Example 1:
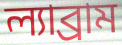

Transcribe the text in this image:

ল্যাব্রাম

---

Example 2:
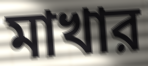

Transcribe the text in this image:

মাখার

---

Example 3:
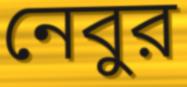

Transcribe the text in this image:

নেবুর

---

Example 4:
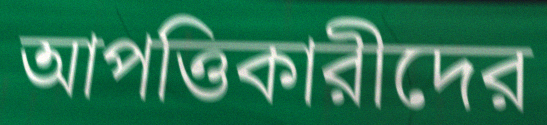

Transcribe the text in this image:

আপত্তিকারীদের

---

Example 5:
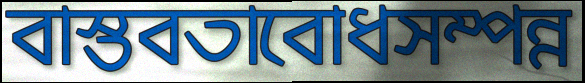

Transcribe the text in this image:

বাস্তবতাবোধসম্পন্ন